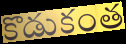
కొడుకంత